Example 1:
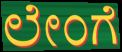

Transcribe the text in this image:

ಲೇಂಗೆ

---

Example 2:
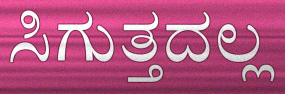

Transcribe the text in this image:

ಸಿಗುತ್ತದಲ್ಲ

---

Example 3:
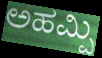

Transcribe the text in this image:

ಅಹಮ್ಪಿ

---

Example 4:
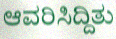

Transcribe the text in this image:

ಆವರಿಸಿದ್ದಿತು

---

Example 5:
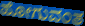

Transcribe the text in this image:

ಹೋಗುವಂತ